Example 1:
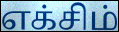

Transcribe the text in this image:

எக்சிம்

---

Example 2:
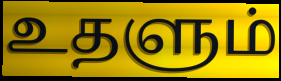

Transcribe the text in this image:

உதளும்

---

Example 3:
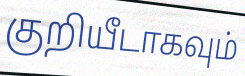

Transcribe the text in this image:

குறியீடாகவும்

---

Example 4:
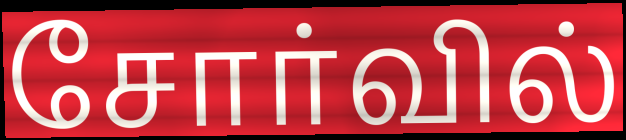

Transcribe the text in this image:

சோர்வில்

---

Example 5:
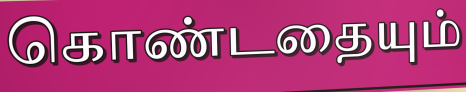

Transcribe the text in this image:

கொண்டதையும்